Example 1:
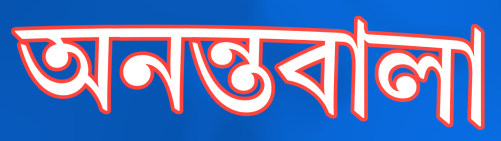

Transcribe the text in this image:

অনন্তবালা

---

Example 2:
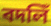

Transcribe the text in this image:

বদলিঁ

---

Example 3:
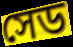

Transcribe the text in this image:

সেড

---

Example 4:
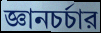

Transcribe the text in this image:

জ্ঞানচর্চার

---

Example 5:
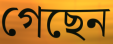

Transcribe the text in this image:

গেছেন